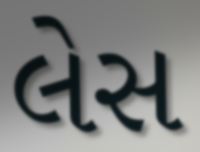
લેસ